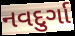
નવદુર્ગા